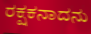
ರಕ್ಷಕನಾದನು